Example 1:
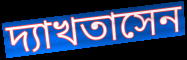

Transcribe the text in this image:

দ্যাখতাসেন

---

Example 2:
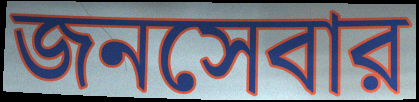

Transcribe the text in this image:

জনসেবার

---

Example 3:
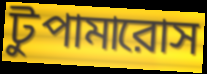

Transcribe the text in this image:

টুপামারোস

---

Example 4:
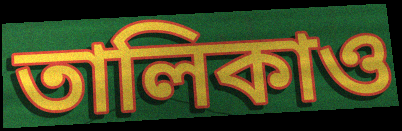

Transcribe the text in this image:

তালিকাও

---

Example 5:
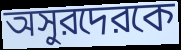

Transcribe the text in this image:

অসুরদেরকে